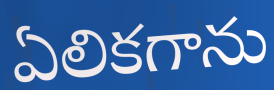
ఏలికగాను